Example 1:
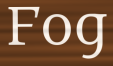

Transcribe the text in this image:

Fog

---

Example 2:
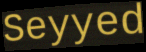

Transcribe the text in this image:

Seyyed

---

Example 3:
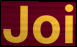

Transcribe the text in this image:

Joi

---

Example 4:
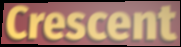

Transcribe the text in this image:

Crescent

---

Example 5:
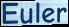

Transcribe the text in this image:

Euler